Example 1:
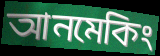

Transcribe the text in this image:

আনমেকিং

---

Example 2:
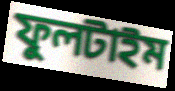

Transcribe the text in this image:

ফুলটাইম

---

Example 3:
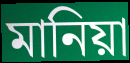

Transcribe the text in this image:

মানিয়া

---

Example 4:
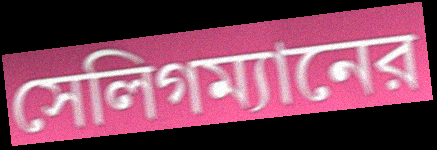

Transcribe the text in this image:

সেলিগম্যানের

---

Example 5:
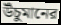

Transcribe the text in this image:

উঁচুমানের